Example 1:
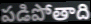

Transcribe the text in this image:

పడిపోతాది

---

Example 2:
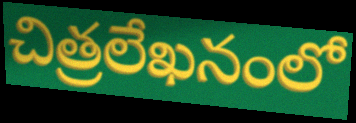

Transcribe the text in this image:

చిత్రలేఖనంలో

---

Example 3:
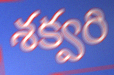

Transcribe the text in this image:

శక్వరి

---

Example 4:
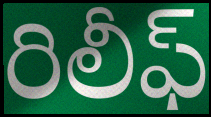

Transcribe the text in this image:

రిలీఫ్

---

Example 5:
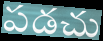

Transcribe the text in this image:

పడచు